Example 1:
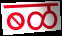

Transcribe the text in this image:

ब्ळ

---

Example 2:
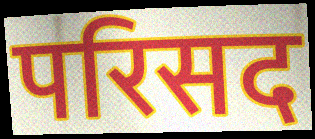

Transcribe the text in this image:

परिसद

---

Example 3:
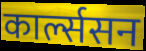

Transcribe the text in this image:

कार्ल्ससन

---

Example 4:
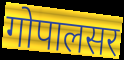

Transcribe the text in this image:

गोपालसर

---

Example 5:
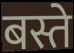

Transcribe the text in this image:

बस्ते